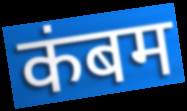
कंबम